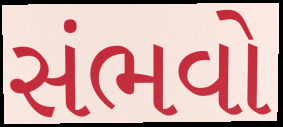
સંભવો